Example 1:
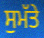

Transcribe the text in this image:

ਸੁਮੱਤੇ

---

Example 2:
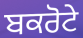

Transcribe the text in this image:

ਬਕਰੋਟੇ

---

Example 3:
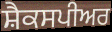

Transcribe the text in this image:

ਸ਼ੈਕਸਪੀਅਰ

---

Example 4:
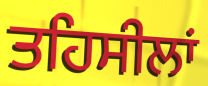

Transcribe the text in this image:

ਤਹਿਸੀਲਾਂ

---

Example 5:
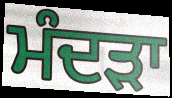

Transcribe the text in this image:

ਮੰਦੜਾ